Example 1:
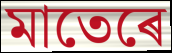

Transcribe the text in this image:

মাতেৰে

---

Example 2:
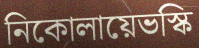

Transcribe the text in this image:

নিকোলায়েভস্কি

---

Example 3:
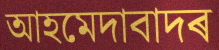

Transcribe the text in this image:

আহমেদাবাদৰ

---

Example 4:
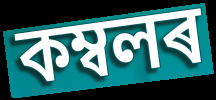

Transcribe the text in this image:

কম্বলৰ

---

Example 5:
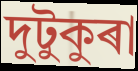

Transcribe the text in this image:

দুটুকুৰা